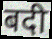
बदी